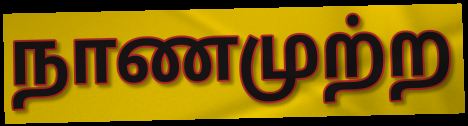
நாணமுற்ற